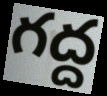
గద్ద